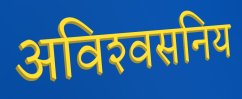
अविश्वसनिय